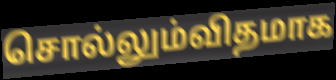
சொல்லும்விதமாக